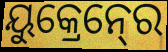
ୟୁକ୍ରେନ୍‍ରେ